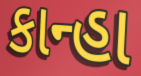
કાન્હા